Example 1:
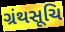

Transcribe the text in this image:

ગ્રંથસૂચિ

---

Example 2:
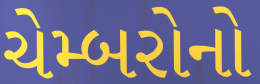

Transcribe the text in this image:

ચેમ્બરોનો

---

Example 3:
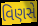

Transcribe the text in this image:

વિણસે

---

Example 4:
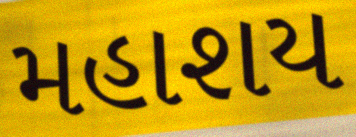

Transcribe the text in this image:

મહાશય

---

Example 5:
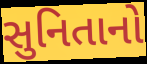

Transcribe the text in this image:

સુનિતાનો